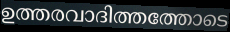
ഉത്തരവാദിത്തത്തോടെ